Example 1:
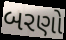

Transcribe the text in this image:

બરણો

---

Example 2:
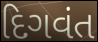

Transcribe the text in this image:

દિગવંત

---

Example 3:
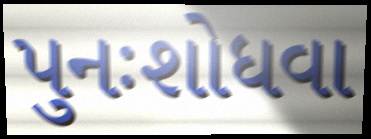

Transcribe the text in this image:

પુનઃશોધવા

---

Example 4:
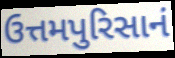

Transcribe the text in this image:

ઉત્તમપુરિસાનં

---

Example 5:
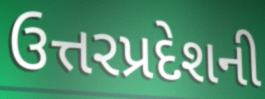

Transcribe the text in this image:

ઉત્તરપ્રદેશની